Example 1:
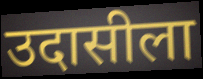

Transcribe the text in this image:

उदासीला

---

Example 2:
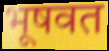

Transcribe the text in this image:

भूषवत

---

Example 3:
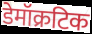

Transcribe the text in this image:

डेमॉक्रटिक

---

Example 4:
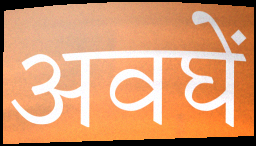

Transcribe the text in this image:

अवघें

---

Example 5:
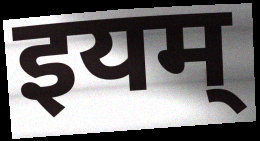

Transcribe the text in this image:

इयम्